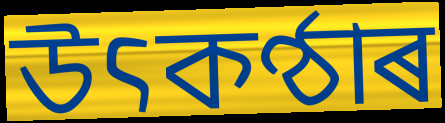
উৎকণ্ঠাৰ